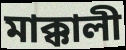
মাক্কালী